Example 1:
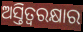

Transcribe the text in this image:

ଅସ୍ତିତ୍ୱରକ୍ଷାର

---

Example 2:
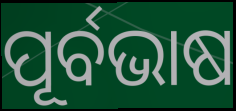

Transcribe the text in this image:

ପୂର୍ବଭାଷ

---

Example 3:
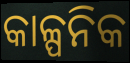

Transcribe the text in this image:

କାଳ୍ପନିକ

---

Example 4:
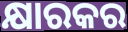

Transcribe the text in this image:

କ୍ଷାରକର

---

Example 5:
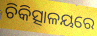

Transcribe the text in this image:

ଚିକିତ୍ସାଳୟରେ